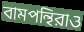
বামপন্থিরাও